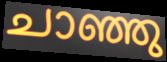
ചാഞ്ഞു